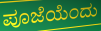
ಪೂಜೆಯೆಂದು